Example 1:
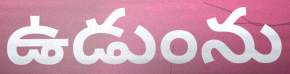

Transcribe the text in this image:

ఉడుంను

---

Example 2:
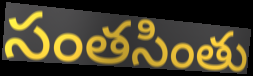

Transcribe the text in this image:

సంతసింతు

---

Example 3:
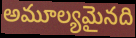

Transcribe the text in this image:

అమూల్యమైనది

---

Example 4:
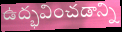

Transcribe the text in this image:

ఉద్భవించడాన్ని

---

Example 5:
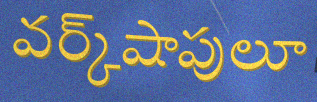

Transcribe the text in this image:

వర్క్‌షాపులూ